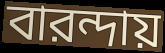
বারন্দায়